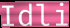
Idli